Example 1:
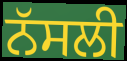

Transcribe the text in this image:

ਨੱਸਲੀ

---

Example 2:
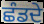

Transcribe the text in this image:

ਛੰਡਦੇ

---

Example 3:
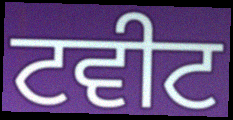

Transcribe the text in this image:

ਟਵੀਟ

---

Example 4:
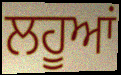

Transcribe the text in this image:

ਲਹੂਆਂ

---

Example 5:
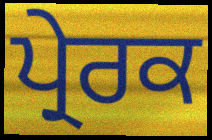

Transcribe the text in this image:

ਪ੍ਰੇਰਕ